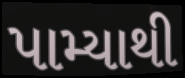
પામ્યાથી